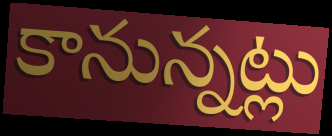
కానున్నట్లు